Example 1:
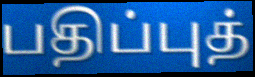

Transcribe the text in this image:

பதிப்புத்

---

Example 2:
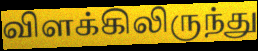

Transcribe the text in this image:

விளக்கிலிருந்து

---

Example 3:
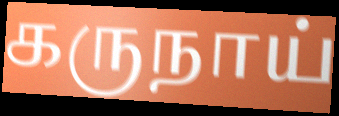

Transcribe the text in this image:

கருநாய்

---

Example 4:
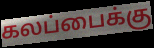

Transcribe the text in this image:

கலப்பைக்கு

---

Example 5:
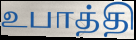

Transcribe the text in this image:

உபாத்தி